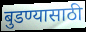
बुडण्यासाठी